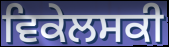
ਵਿਕੇਲਸਕੀ